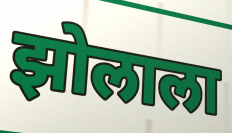
झोलाला